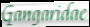
Gangaridae